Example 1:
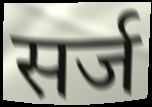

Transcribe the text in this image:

सर्ज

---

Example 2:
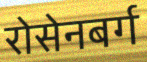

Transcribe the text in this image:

रोसेनबर्ग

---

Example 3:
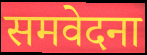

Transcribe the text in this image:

समवेदना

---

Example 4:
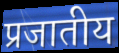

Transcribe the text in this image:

प्रजातीय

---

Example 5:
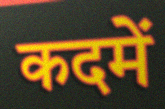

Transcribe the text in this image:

कदमें